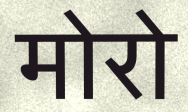
मोरो